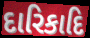
દારિકાદિ